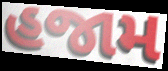
હજામ